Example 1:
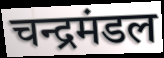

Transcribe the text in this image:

चन्द्रमंडल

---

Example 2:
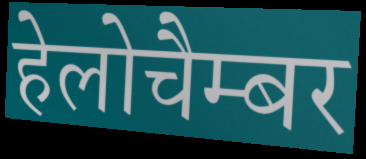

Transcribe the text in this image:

हेलोचैम्बर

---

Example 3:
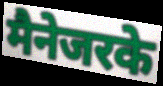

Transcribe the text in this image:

मैनेजरके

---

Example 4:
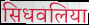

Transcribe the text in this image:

सिधवलिया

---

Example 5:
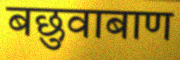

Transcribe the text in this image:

बछुवाबाण